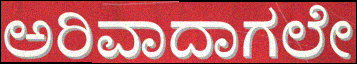
ಅರಿವಾದಾಗಲೇ